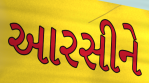
આરસીને